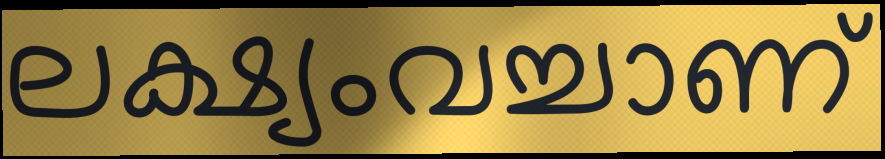
ലക്ഷ്യംവച്ചാണ്